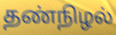
தண்நிழல்